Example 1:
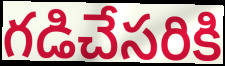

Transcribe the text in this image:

గడిచేసరికి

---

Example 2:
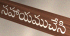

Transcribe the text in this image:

సహాయముచేసి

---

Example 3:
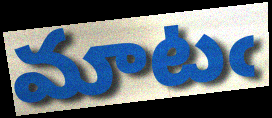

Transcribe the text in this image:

మాటఁ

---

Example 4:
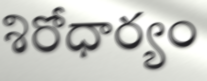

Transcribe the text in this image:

శిరోధార్యం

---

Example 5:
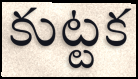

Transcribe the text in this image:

కుట్టక